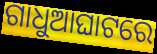
ଗାଧୁଆଘାଟରେ